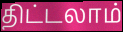
திட்டலாம்